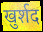
खुर्शद